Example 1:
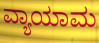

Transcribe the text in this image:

ವ್ಯಾಯಾಮ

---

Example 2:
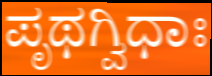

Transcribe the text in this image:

ಪೃಥಗ್ವಿಧಾಃ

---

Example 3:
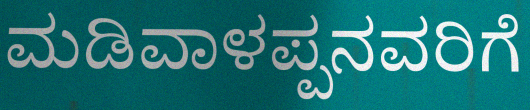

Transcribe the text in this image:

ಮಡಿವಾಳಪ್ಪನವರಿಗೆ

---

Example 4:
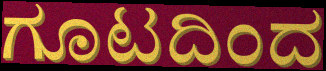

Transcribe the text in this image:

ಗೂಟದಿಂದ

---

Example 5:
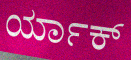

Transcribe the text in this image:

ರ್ಯಾಕ್